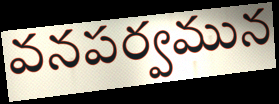
వనపర్వమున